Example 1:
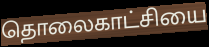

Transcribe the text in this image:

தொலைகாட்சியை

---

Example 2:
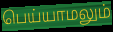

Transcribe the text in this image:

பெய்யாமலும்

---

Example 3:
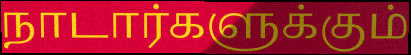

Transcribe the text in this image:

நாடார்களுக்கும்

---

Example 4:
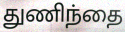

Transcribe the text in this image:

துணிந்தை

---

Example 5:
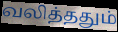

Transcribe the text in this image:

வலித்ததும்